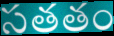
సతతం